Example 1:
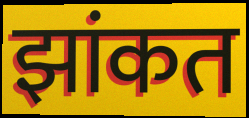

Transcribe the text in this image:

झांकत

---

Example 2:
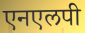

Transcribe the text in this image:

एनएलपी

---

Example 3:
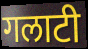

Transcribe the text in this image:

गलाटी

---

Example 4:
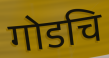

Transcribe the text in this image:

गोडचि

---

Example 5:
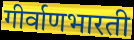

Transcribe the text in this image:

गीर्वाणभारती